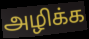
அழிக்க